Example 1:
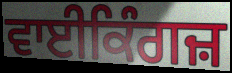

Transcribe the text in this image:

ਵਾਈਕਿੰਗਜ਼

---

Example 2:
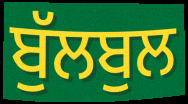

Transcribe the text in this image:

ਬੁੱਲਬੁਲ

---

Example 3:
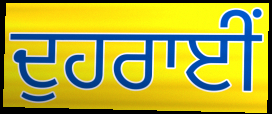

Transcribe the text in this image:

ਦੁਹਰਾਈਂ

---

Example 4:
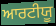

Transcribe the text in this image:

ਆਰਟੀਯੂ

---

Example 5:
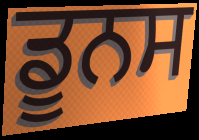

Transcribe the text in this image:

ਡੂਨਸ